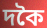
দকৈ